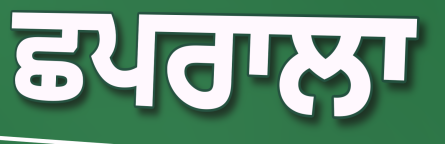
ਛਪਰਾਲਾ